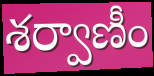
శర్వాణీం